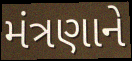
મંત્રણાને